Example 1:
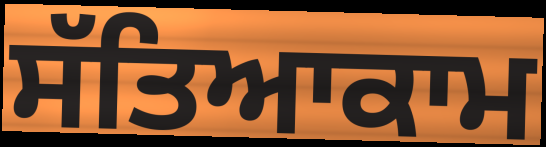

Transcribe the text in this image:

ਸੱਤਿਆਕਾਮ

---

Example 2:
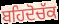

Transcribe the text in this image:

ਬਹਿਦੋਚੱਕ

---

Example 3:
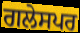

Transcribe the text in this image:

ਗਲੇਸਪਰ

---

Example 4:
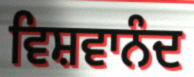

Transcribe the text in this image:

ਵਿਸ਼ਵਾਨੰਦ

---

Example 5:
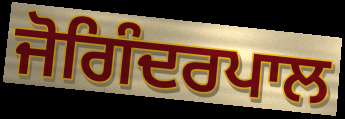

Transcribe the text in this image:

ਜੋਗਿੰਦਰਪਾਲ